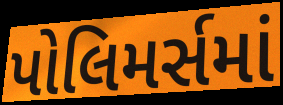
પોલિમર્સમાં